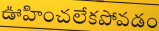
ఊహించలేకపోవడం